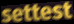
settest